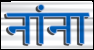
नांना